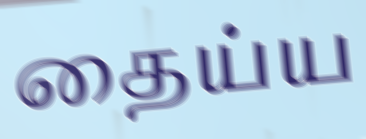
தைய்ய